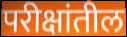
परीक्षांतील